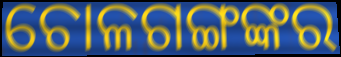
ଚୋଳଗଙ୍ଗଙ୍କର